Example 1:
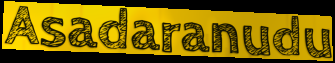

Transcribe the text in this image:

Asadaranudu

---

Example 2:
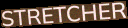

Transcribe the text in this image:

STRETCHER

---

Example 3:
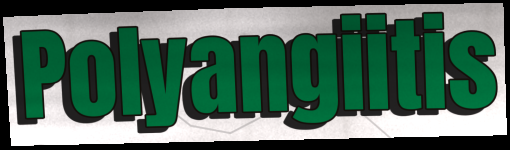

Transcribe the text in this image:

Polyangiitis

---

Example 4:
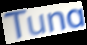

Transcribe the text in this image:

Tuna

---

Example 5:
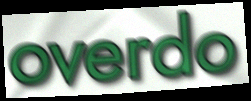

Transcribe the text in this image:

overdo